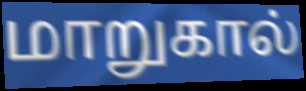
மாறுகால்